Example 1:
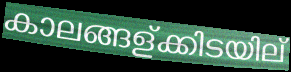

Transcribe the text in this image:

കാലങ്ങള്ക്കിടയില്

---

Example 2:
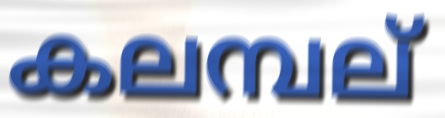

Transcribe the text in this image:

കലമ്പല്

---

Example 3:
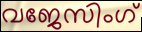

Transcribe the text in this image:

വജേസിംഗ്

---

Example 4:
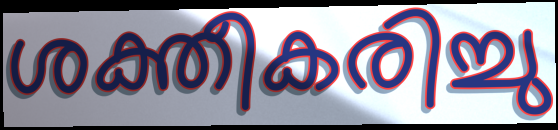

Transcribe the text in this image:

ശക്തീകരിച്ചു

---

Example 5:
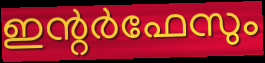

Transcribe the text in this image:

ഇന്റർഫേസും